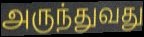
அருந்துவது